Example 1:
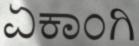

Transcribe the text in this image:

ಏಕಾಂಗಿ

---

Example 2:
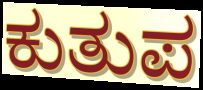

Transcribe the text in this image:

ಕುತುಪ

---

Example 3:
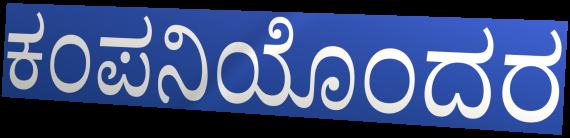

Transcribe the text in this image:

ಕಂಪನಿಯೊಂದರ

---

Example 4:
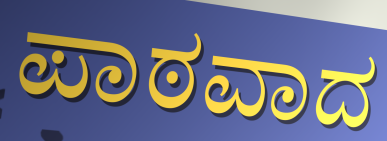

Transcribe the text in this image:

ಪಾಠವಾದ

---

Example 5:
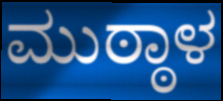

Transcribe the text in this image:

ಮುಠ್ಠಾಳ